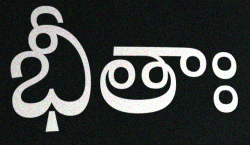
భీతాః